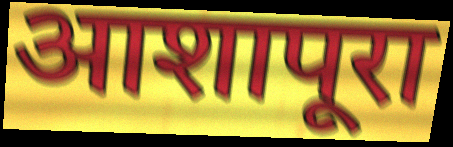
आशापूरा